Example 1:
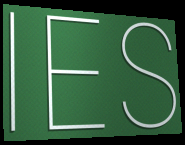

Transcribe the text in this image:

IES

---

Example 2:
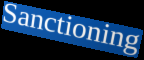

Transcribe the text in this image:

Sanctioning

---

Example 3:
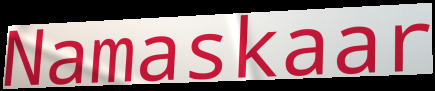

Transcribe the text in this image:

Namaskaar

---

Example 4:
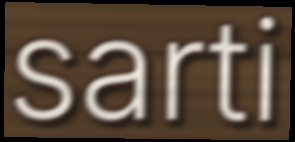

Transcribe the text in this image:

sarti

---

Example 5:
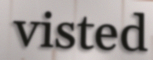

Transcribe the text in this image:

visted